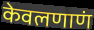
केवलणाणं